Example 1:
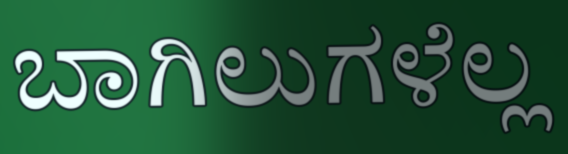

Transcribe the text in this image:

ಬಾಗಿಲುಗಳೆಲ್ಲ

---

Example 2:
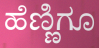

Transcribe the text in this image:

ಹೆಣ್ಣಿಗೂ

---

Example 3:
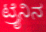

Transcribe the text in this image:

ಟ್ರೈನಿನ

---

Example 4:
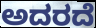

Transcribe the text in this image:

ಅದರದೆ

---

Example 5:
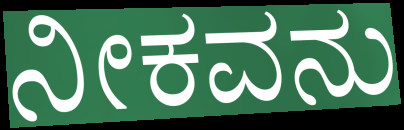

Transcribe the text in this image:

ನೀಕವನು